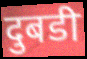
दुबडी